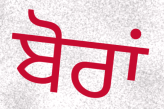
ਬੋਰਾਂ